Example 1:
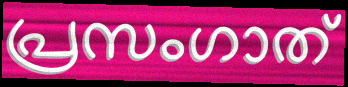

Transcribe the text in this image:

പ്രസംഗാത്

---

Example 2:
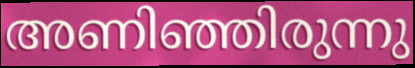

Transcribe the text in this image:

അണിഞ്ഞിരുന്നു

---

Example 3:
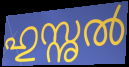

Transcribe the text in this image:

ഹുസ്നുൽ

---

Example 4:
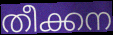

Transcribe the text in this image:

തീക്കന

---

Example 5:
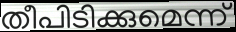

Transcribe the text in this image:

തീപിടിക്കുമെന്ന്